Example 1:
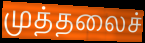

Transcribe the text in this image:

முத்தலைச்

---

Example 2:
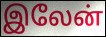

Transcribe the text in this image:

இலேன்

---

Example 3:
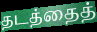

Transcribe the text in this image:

தடத்தைத்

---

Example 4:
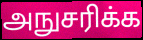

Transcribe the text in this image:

அநுசரிக்க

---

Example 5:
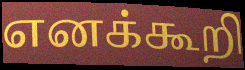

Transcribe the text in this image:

எனக்கூறி